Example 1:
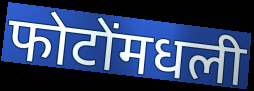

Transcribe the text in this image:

फोटोंमधली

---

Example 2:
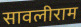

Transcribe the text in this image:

सावलीराम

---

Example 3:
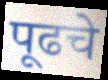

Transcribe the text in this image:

पूढचे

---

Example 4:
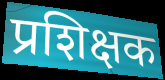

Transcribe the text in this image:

प्रशिक्षक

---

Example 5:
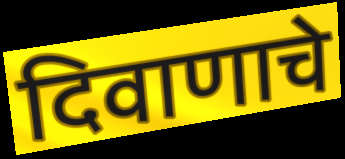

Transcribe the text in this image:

दिवाणाचे